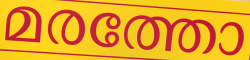
മരത്തോ